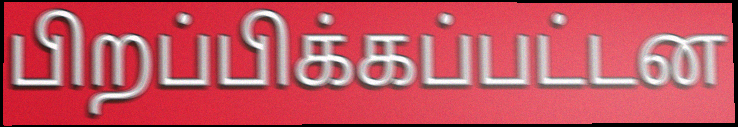
பிறப்பிக்கப்பட்டன